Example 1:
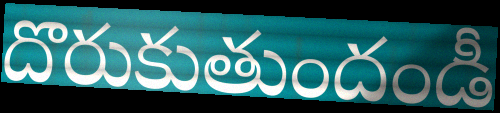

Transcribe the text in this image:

దొరుకుతుందండీ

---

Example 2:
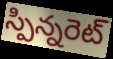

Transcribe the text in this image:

స్పిన్నరెట్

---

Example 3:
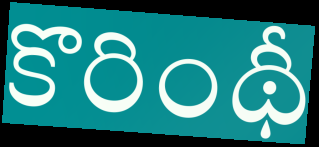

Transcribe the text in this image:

కొరింథీ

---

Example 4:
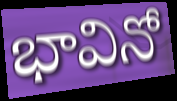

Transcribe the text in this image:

భావినో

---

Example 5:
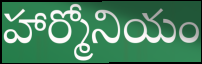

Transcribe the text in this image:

హార్మోనియం